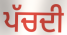
ਪੱਚਦੀ